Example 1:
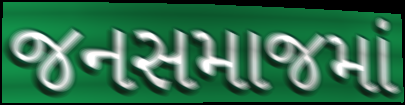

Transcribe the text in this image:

જનસમાજમાં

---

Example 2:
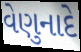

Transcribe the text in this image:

વેણુનાદે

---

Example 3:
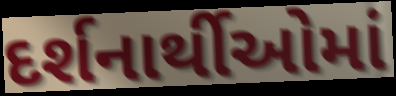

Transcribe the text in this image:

દર્શનાર્થીઓમાં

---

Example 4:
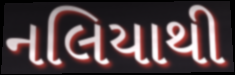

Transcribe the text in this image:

નલિયાથી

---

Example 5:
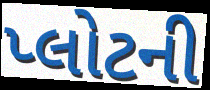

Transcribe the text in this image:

પ્લોટની